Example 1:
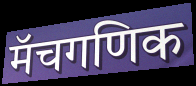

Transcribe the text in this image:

मॅचगणिक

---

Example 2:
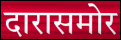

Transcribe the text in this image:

दारासमोर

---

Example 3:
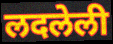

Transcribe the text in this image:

लदलेली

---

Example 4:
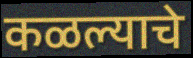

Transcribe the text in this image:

कळल्याचे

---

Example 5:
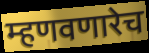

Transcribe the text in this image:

म्हणवणारेच